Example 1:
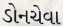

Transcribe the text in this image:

ડોનચેવા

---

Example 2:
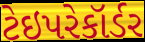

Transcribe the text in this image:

ટેઇપરેકૉર્ડર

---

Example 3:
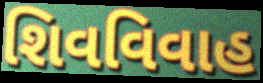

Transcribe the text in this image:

શિવવિવાહ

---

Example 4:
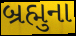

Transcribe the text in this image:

બ્રહ્મુના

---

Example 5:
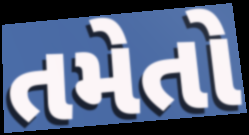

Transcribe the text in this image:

તમેતો